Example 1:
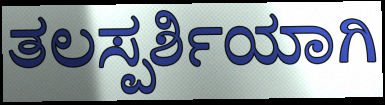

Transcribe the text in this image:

ತಲಸ್ಪರ್ಶಿಯಾಗಿ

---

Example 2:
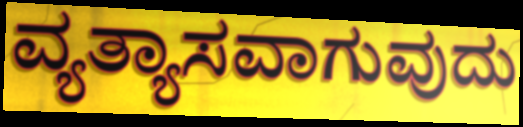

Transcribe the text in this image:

ವ್ಯತ್ಯಾಸವಾಗುವುದು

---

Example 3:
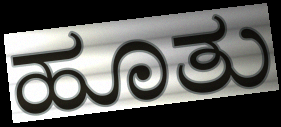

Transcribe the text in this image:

ಹೂತು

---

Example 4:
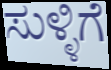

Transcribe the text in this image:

ಸುಳ್ಳಿಗೆ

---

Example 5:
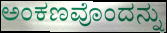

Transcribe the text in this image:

ಅಂಕಣವೊಂದನ್ನು